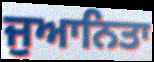
ਜੁਆਨਿਤਾ